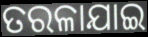
ତରଳାଯାଇ